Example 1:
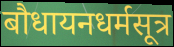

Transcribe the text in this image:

बौधायनधर्मसूत्र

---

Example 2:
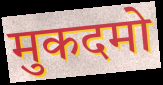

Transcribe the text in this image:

मुकदमो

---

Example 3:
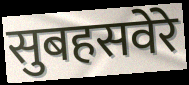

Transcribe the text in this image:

सुबहसवेरे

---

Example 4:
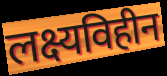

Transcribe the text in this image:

लक्ष्यविहीन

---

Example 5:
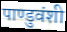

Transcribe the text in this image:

पाण्डुवंशी